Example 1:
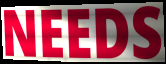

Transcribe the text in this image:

NEEDS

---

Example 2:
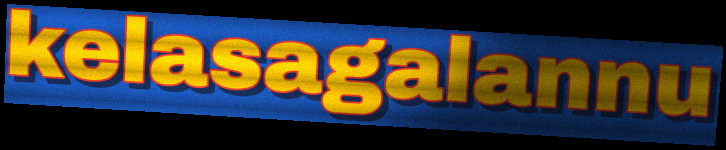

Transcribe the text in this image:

kelasagalannu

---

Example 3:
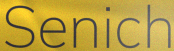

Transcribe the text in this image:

Senich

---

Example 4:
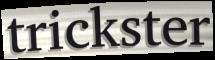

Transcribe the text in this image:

trickster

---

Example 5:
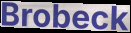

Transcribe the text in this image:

Brobeck